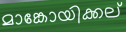
മാങ്കോയിക്കല്